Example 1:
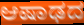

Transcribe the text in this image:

ಆಷಾಢದ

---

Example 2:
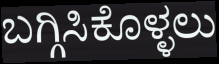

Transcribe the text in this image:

ಬಗ್ಗಿಸಿಕೊಳ್ಳಲು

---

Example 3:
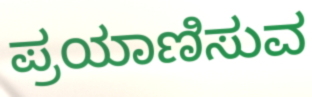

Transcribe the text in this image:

ಪ್ರಯಾಣಿಸುವ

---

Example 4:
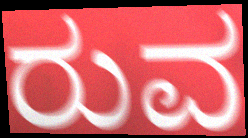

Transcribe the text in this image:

ರುವ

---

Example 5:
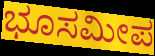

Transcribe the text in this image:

ಭೂಸಮೀಪ